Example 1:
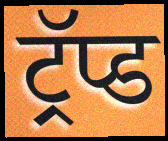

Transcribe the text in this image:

ट्रॅप्ड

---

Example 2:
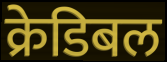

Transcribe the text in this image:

क्रेडिबल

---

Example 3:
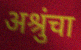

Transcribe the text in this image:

अश्रुंचा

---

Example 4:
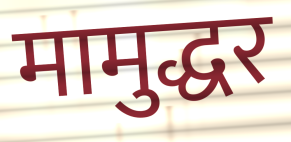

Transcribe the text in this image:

मामुद्धर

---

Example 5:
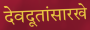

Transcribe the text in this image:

देवदूतांसारखे